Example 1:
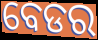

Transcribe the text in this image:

ବେଡର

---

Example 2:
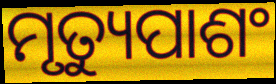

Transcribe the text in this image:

ମୃତ୍ୟୁପାଶଂ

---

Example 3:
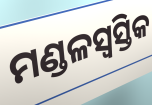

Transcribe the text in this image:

ମଣ୍ଡଳସ୍ୱସ୍ତିକ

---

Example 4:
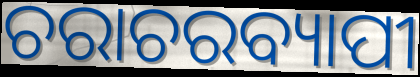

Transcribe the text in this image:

ଚରାଚରବ୍ୟାପୀ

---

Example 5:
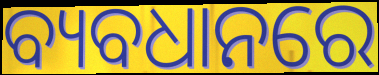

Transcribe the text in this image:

ବ୍ୟବଧାନରେ